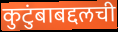
कुटुंबाबद्दलची